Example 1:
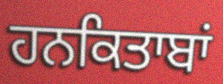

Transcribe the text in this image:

ਹਨਕਿਤਾਬਾਂ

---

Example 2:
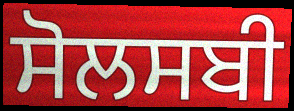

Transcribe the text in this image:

ਸੋਲਸਬੀ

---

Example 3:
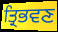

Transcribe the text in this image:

ਤ੍ਰਿਭਵਣ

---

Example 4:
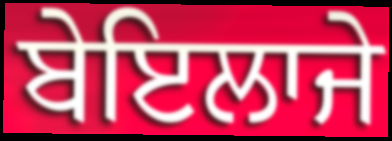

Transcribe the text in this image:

ਬੇਇਲਾਜੇ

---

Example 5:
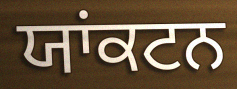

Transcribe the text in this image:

ਯਾਂਕਟਨ